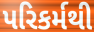
પરિકર્મથી